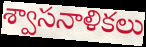
శ్వాసనాళికలు